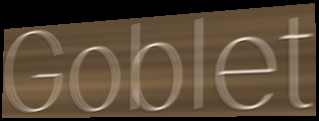
Goblet